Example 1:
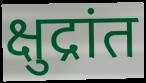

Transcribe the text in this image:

क्षुद्रांत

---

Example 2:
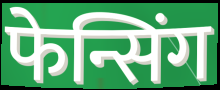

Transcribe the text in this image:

फेन्सिंग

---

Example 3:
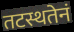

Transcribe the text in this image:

तटस्थतेनं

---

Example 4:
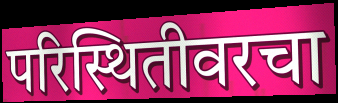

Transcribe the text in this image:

परिस्थितीवरचा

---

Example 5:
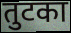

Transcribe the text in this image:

तुटका